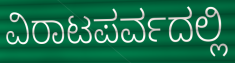
ವಿರಾಟಪರ್ವದಲ್ಲಿ